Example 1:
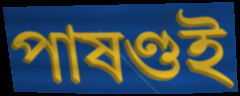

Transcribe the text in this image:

পাষণ্ডই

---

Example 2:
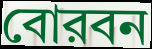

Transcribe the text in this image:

বোরবন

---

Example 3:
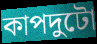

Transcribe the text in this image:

কাপদুটো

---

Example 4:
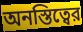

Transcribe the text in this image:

অনস্তিত্বের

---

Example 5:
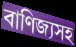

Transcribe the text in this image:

বাণিজ্যসহ